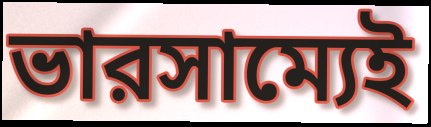
ভারসাম্যেই